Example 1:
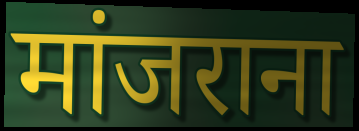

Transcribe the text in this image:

मांजराना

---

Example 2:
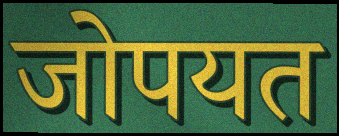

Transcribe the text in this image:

जोपयत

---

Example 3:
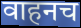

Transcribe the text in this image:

वाहनच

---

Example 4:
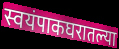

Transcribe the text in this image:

स्वयंपाकघरातल्या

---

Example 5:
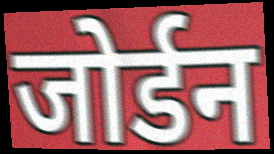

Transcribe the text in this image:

जोर्डन